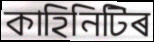
কাহিনিটিৰ